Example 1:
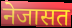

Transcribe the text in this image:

नेजासत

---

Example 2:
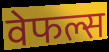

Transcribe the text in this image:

वेफल्स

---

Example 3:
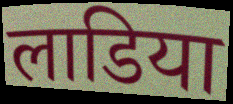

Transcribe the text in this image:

लाडिया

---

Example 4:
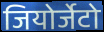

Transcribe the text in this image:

जियोर्जेटो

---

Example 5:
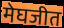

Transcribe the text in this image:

मेघजीत